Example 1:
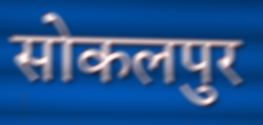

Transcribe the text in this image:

सोकलपुर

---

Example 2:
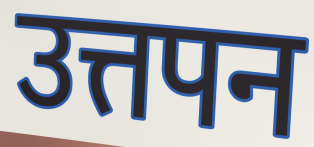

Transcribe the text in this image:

उत्तपन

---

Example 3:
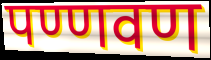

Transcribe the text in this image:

पण्णवण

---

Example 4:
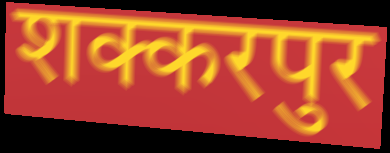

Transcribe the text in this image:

शक्करपुर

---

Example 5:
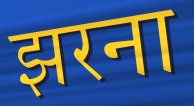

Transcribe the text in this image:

झरना